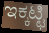
ಇಕ್ಕಟ್ಟಿ